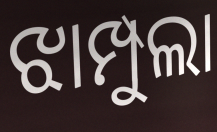
ଝାମ୍ପୁଲା